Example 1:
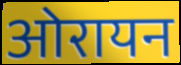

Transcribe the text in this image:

ओरायन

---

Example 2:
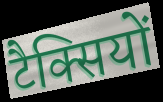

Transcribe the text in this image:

टैक्सियों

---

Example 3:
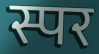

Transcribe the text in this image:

स्पर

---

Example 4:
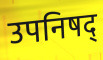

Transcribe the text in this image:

उपनिषद्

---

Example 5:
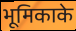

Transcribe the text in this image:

भूमिकाके